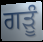
ਗੜੂੰ